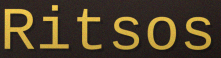
Ritsos